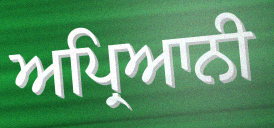
ਅਪ੍ਰਿਆਨੀ